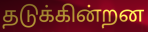
தடுக்கின்றன